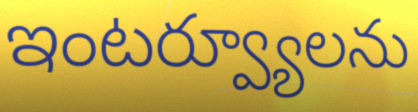
ఇంటర్వ్యూలను